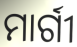
ମାର୍ଗୀ